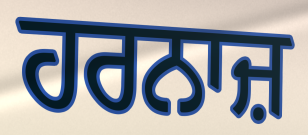
ਹਰਨਾਜ਼